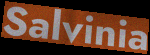
Salvinia